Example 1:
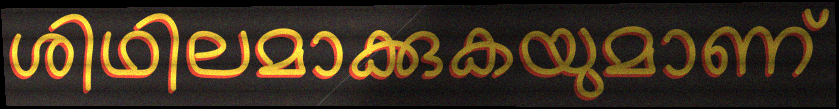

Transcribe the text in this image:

ശിഥിലമാക്കുകയുമാണ്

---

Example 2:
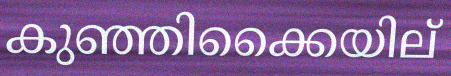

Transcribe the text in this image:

കുഞ്ഞിക്കൈയില്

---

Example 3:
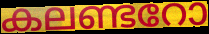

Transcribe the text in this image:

കലണ്ടറോ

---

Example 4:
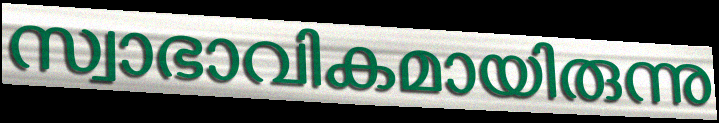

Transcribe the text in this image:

സ്വാഭാവികമായിരുന്നു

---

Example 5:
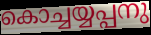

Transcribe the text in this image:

കൊച്ചയ്യപ്പനു